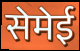
सेमेई